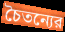
চৈতন্যের